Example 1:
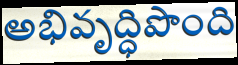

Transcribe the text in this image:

అభివృద్ధిపొంది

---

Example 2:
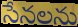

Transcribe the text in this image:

సేనలను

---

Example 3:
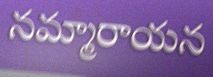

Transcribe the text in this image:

నమ్మారాయన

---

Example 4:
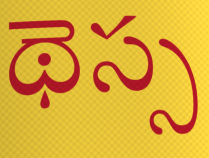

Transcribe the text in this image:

థెస్స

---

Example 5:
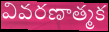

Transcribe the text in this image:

వివరణాత్మక